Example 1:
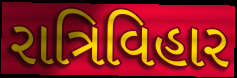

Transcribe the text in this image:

રાત્રિવિહાર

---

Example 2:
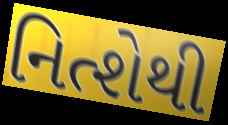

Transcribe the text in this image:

નિત્શેથી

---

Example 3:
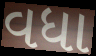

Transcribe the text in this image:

વધા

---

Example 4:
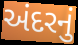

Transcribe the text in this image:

અંદરનું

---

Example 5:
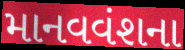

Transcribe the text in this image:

માનવવંશના